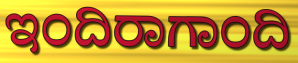
ಇಂದಿರಾಗಾಂದಿ